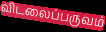
விடலைப்பருவம்